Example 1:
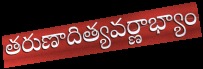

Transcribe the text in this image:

తరుణాదిత్యవర్ణాభ్యాం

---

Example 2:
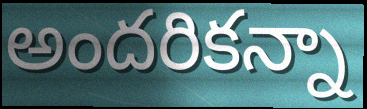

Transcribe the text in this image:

అందరికన్నా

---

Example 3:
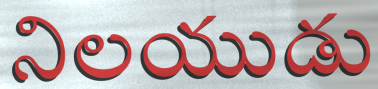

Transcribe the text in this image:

నిలయుడు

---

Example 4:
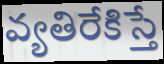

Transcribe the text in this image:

వ్యతిరేకిస్తే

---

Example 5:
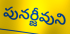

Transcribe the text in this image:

పునర్జీవుని